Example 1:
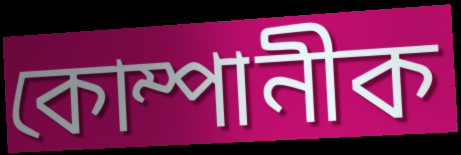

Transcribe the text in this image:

কোম্পানীক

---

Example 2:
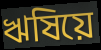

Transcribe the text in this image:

ঋষিয়ে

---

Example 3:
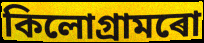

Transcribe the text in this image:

কিলোগ্ৰামৰো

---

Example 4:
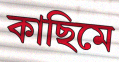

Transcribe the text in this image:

কাছিমে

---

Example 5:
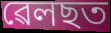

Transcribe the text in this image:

ৱেলছত